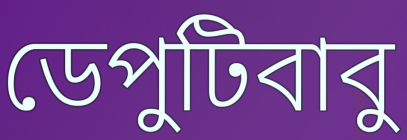
ডেপুটিবাবু